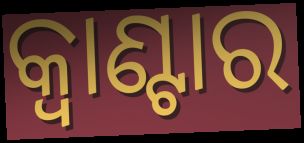
କ୍ୱାଣ୍ଟାର